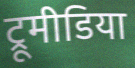
ट्रूमीडिया